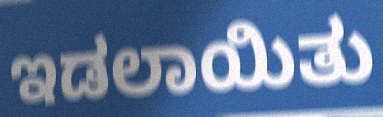
ಇಡಲಾಯಿತು